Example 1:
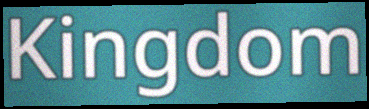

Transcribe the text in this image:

Kingdom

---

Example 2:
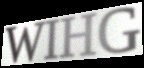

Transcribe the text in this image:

WIHG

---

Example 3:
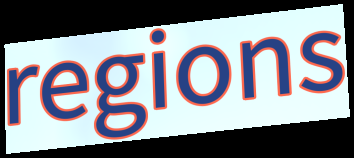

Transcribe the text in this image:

regions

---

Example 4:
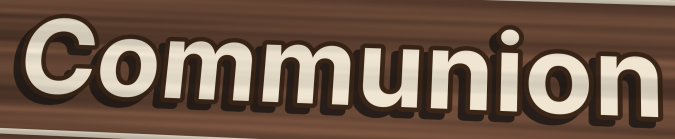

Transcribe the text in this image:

Communion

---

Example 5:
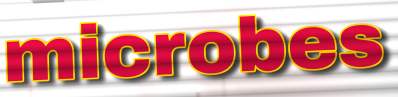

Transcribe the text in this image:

microbes